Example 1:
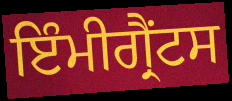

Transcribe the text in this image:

ਇੰਮੀਗ੍ਰੈਂਟਸ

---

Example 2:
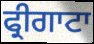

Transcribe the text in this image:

ਫ੍ਰੀਗਾਟਾ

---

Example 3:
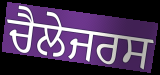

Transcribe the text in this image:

ਚੈਲੇਜਰਸ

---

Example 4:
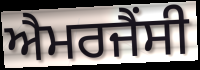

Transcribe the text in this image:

ਐਮਰਜੈਂਸੀ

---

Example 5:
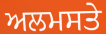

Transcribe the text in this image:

ਅਲਮਸਤੇ